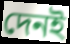
দেনই